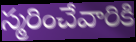
స్మరించేవారికి